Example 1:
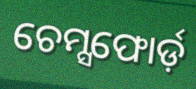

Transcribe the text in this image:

ଚେମ୍ସଫୋର୍ଡ଼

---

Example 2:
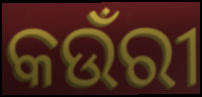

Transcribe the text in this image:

କଉଁରୀ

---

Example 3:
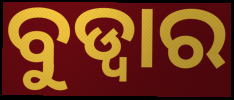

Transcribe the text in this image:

ବୁଡ୍ୱାର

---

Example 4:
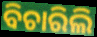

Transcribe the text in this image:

ବିଚାରିଲି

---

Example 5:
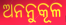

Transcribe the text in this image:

ଅନନୁକୂଳ